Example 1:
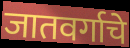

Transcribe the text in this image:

जातवर्गाचे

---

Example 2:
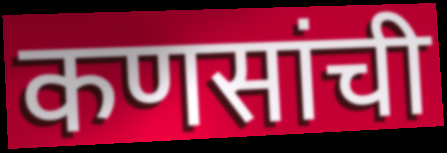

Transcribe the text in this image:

कणसांची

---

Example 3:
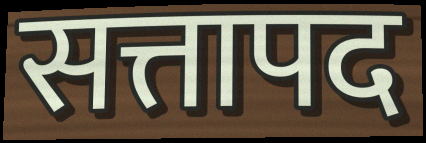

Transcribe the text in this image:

सत्तापद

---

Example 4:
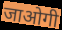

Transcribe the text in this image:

जाओगी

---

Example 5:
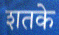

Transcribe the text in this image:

शतके